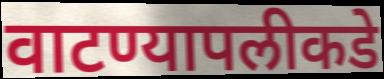
वाटण्यापलीकडे